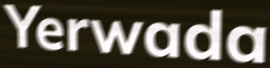
Yerwada